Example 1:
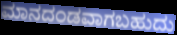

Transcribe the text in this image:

ಮಾನದಂಡವಾಗಬಹುದು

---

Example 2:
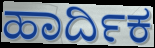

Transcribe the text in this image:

ಹಾರ್ದಿಕ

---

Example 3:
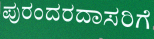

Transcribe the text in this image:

ಪುರಂದರದಾಸರಿಗೆ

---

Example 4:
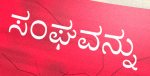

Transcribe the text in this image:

ಸಂಘವನ್ನು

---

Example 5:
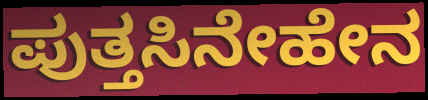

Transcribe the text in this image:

ಪುತ್ತಸಿನೇಹೇನ